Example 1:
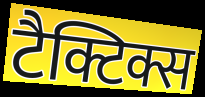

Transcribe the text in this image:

टैक्टिक्स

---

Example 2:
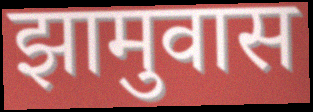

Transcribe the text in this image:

झामुवास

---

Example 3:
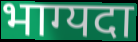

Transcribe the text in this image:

भाग्यदा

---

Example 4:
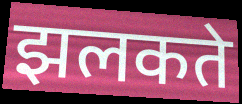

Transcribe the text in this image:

झलकते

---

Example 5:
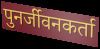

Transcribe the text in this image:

पुनर्जीवनकर्ता